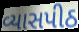
વ્યાસપીઠ